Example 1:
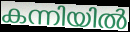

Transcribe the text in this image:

കന്നിയിൽ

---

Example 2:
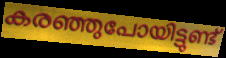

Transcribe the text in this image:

കരഞ്ഞുപോയിട്ടുണ്ട്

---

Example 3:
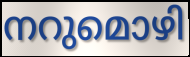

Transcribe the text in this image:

നറുമൊഴി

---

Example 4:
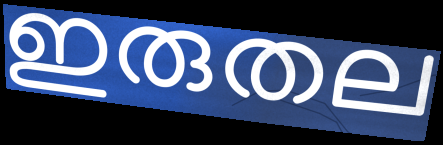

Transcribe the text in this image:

ഇരുതല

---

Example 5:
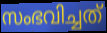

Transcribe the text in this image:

സംഭവിച്ചത്